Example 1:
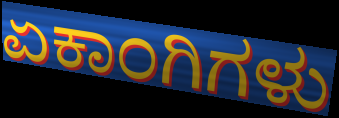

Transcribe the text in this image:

ಏಕಾಂಗಿಗಳು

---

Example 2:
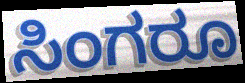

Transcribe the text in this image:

ಸಿಂಗರೂ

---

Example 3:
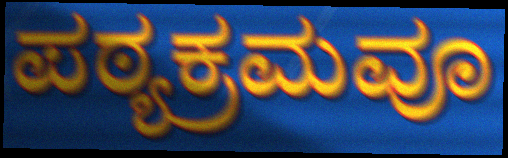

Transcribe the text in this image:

ಪಠ್ಯಕ್ರಮವೂ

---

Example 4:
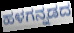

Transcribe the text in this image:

ಹಳಗನ್ನಡದ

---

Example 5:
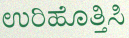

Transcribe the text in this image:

ಉರಿಹೊತ್ತಿಸಿ